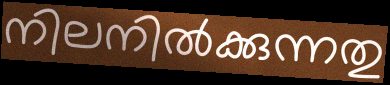
നിലനിൽക്കുന്നതു